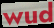
wud